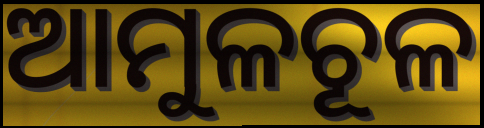
ଆମୁଳଚୂଳ